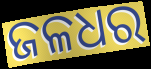
ଜଳଧର